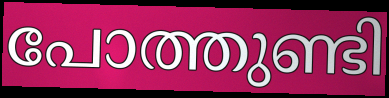
പോത്തുണ്ടി